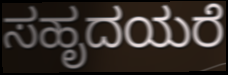
ಸಹೃದಯರೆ